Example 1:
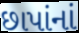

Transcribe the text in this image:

છાપાંનાં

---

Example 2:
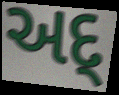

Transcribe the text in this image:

અદ્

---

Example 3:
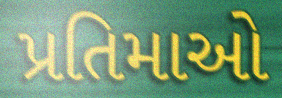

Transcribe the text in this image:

પ્રતિમાઓ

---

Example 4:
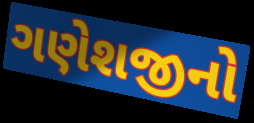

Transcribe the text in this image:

ગણેશજીનો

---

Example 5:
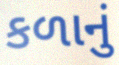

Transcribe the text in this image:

કળાનું